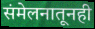
संमेलनातूनही